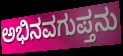
ಅಭಿನವಗುಪ್ತನು